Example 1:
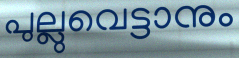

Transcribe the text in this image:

പുല്ലുവെട്ടാനും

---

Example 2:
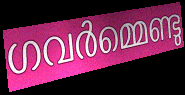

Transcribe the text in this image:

ഗവർമ്മെണ്ടു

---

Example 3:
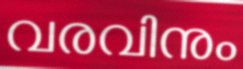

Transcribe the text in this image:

വരവിനും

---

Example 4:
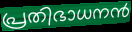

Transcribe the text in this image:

പ്രതിഭാധനൻ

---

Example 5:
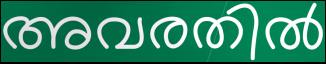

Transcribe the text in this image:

അവരതിൽ